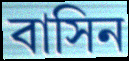
বাসিন